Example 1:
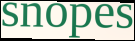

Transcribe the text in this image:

snopes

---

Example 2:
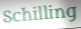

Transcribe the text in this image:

Schilling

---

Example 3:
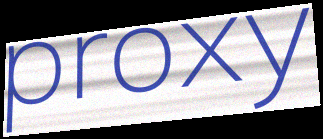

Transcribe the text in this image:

proxy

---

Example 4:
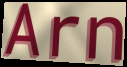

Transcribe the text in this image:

Arn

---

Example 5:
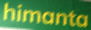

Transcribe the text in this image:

himanta